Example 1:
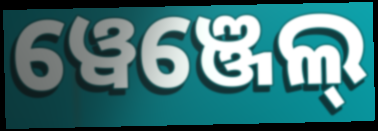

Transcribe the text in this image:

ୱେଞ୍ଜେଲ୍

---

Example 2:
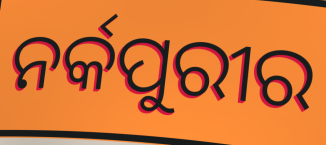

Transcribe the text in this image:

ନର୍କପୁରୀର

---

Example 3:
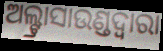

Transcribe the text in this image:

ଅଲ୍ଟ୍ରାସାଉଣ୍ଡଦ୍ୱାରା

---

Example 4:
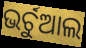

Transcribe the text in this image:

ଭର୍ଚୁଆଲ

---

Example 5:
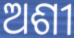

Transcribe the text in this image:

ଅଶୀ